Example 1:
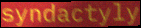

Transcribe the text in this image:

syndactyly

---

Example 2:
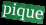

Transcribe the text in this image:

pique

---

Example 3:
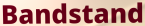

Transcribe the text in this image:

Bandstand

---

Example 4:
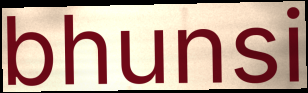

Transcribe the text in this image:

bhunsi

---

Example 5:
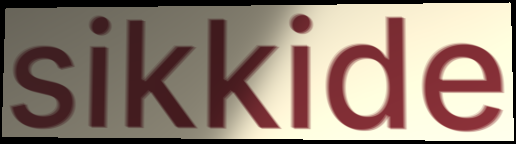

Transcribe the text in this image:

sikkide